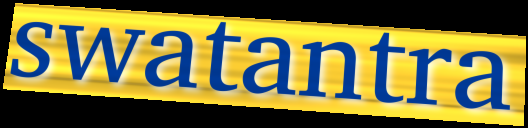
swatantra